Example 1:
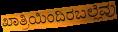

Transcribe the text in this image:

ಖಾತ್ರಿಯಿಂದಿರಬಲ್ಲೆವು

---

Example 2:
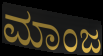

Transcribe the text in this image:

ಮಾಂಜ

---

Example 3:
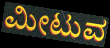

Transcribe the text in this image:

ಮೀಟುವ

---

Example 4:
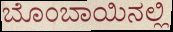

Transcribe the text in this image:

ಬೊಂಬಾಯಿನಲ್ಲಿ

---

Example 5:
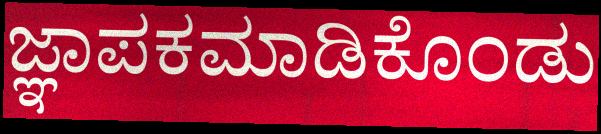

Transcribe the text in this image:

ಜ್ಞಾಪಕಮಾಡಿಕೊಂಡು